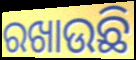
ରଖାଉଛି